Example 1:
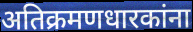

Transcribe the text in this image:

अतिक्रमणधारकांना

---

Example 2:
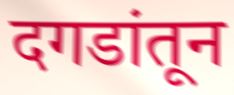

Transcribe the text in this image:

दगडांतून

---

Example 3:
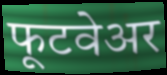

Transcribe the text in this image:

फूटवेअर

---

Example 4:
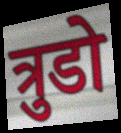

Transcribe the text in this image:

त्रुडो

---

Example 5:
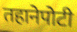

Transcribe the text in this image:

तहानेपोटी